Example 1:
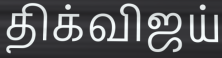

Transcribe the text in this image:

திக்விஜய்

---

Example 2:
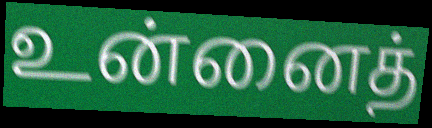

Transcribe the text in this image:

உன்னைத்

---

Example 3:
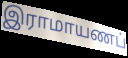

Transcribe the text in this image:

இராமாயணப்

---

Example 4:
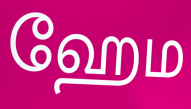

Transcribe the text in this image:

ஹேம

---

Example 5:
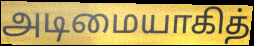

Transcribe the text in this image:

அடிமையாகித்